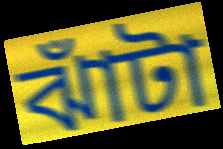
ঝাঁটা